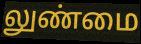
லுண்மை